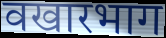
वखारभाग